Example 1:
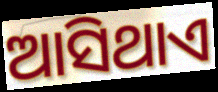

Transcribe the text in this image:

ଆସିଥାଏ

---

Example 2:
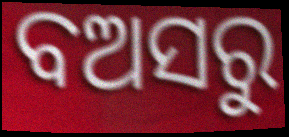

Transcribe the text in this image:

ବଅସରୁ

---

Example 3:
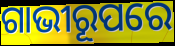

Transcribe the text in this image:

ଗାଭୀରୂପରେ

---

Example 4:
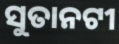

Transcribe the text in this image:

ସୁତାନଟୀ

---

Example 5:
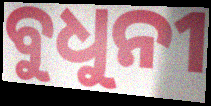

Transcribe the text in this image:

ବୁଧୁନୀ